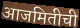
आजमितीची